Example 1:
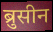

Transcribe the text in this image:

ब्रुसीन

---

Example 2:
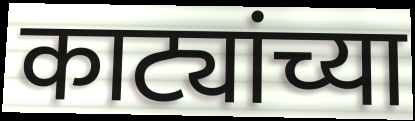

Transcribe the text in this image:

काट्यांच्या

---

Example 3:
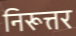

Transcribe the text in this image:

निरूत्तर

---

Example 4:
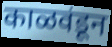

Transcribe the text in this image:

काळवंडून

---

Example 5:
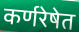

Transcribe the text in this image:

कर्णरेषेत